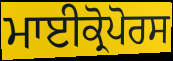
ਮਾਈਕ੍ਰੋਪੋਰਸ